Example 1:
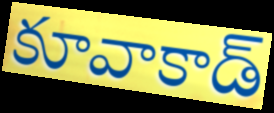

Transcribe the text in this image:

కూవాకాడ్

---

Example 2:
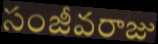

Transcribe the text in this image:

సంజీవరాజు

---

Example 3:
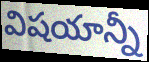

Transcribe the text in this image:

విషయాన్నీ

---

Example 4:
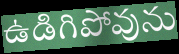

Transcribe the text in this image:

ఉడిగిపోవును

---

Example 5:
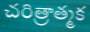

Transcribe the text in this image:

చరిత్రాత్మక